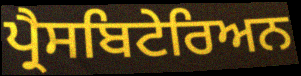
ਪ੍ਰੈਸਬਿਟੇਰਿਅਨ